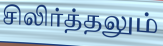
சிலிர்த்தலும்